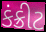
કંક્રીટ